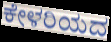
ಕೇಳರಿಯದ